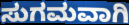
ಸುಗಮವಾಗಿ